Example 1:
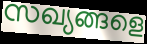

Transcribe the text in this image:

സഖ്യങ്ങളെ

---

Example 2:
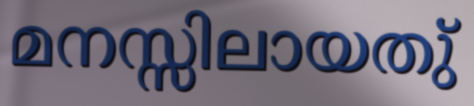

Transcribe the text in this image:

മനസ്സിലായതു്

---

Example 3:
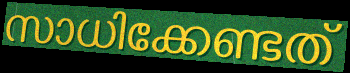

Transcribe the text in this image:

സാധിക്കേണ്ടത്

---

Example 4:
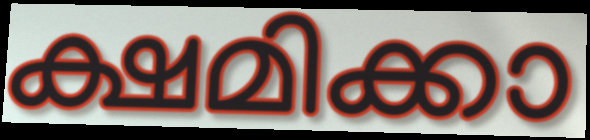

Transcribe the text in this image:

ക്ഷമിക്കാ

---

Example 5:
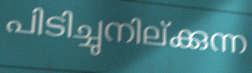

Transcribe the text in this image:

പിടിച്ചുനില്ക്കുന്ന